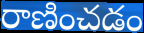
రాణించడం